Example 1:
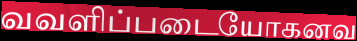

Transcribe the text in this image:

வவளிப்படையோகனவ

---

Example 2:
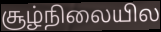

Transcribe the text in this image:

சூழ்நிலையில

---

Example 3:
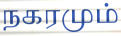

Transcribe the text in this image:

நகரமும்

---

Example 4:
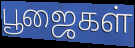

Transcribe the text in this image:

பூஜைகள்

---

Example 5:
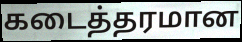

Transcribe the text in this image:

கடைத்தரமான